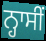
ਨ੍ਹਾਸੀਂ